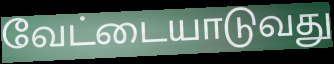
வேட்டையாடுவது